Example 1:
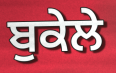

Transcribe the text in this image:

ਬੁਕੇਲੇ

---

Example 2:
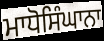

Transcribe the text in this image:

ਮਾਧੋਸਿੰਘਾਨਾ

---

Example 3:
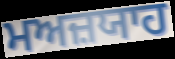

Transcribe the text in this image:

ਮਅਜ਼ਯਾਹ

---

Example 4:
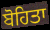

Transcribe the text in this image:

ਬੋਹਿਤਾ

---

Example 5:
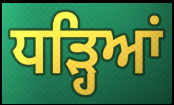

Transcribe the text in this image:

ਧੜ੍ਹਿਆਂ